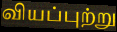
வியப்புற்று